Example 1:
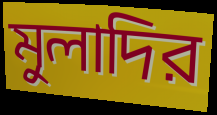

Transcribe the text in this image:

মুলাদির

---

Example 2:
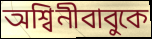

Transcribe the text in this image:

অশ্বিনীবাবুকে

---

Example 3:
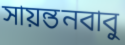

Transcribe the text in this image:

সায়ন্তনবাবু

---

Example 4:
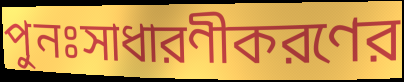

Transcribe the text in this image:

পুনঃসাধারণীকরণের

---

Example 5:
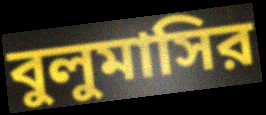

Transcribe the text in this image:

বুলুমাসির